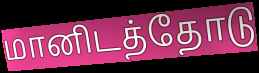
மானிடத்தோடு